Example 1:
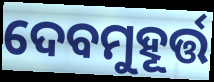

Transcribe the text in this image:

ଦେବମୁହୂର୍ତ୍ତ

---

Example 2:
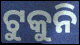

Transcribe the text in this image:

ଟୁକୁନି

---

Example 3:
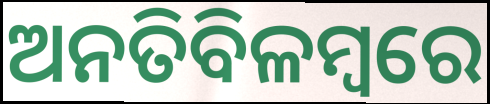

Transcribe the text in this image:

ଅନତିବିଳମ୍ବରେ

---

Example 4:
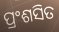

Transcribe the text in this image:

ପ୍ରଂଶସିତ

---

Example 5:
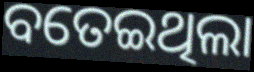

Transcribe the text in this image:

ବତେଇଥିଲା